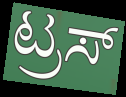
ಟ್ರಸ್